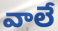
వాలే